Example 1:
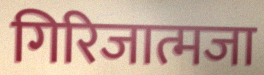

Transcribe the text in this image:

गिरिजात्मजा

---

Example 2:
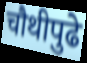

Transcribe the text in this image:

चौथीपुढे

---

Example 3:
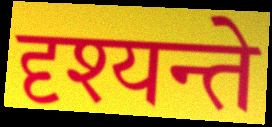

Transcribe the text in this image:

दृश्यन्ते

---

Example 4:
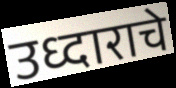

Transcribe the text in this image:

उध्दाराचे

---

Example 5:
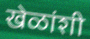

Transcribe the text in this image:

खेळांशी